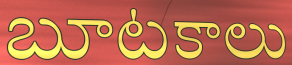
బూటకాలు